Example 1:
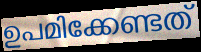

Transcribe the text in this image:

ഉപമിക്കേണ്ടത്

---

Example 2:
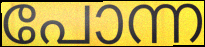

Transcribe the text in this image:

പോന്ന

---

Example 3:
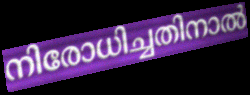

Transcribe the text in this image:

നിരോധിച്ചതിനാൽ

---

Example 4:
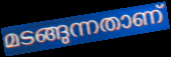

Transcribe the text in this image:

മടങ്ങുന്നതാണ്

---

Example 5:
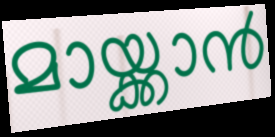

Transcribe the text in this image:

മായ്ക്കാൻ